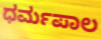
ಧರ್ಮಪಾಲ